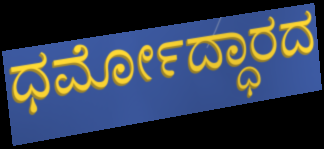
ಧರ್ಮೋದ್ಧಾರದ